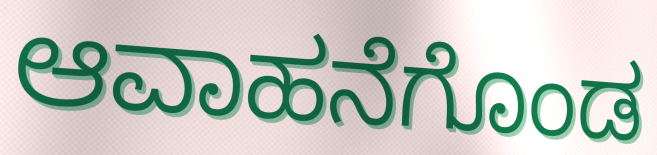
ಆವಾಹನೆಗೊಂಡ